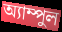
অ্যাম্পুল